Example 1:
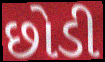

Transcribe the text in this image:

છોડી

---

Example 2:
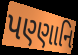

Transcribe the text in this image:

પણ્ણાનિ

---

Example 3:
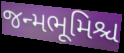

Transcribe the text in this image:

જન્મભૂમિશ્ચ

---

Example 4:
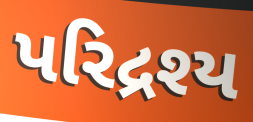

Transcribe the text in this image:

પરિદ્રશ્ય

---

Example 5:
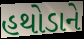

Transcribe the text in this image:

હથોડાને